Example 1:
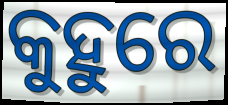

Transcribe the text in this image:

କୁହୁରେ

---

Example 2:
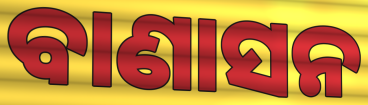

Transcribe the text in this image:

ବାଣାସନ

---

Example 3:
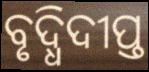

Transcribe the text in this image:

ବୃଦ୍ଧିଦୀପ୍ତ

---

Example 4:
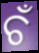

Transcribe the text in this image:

ଚଁ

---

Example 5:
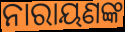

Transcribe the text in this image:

ନାରାୟଣଙ୍କ